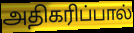
அதிகரிப்பால்